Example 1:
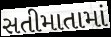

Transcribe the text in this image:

સતીમાતામાં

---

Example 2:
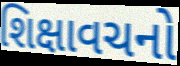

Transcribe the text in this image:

શિક્ષાવચનો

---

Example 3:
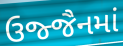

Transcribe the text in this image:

ઉજ્જૈનમાં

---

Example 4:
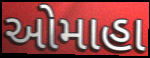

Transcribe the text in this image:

ઓમાહા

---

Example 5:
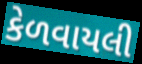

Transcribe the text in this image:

કેળવાયલી